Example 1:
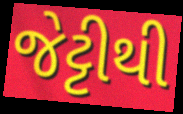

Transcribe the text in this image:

જેટ્ટીથી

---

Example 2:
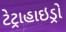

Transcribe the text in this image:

ટેટ્રાહાઇડ્રો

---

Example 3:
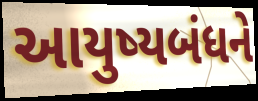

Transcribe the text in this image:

આયુષ્યબંધને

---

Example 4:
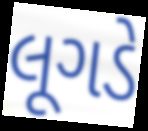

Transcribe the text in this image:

લૂગડે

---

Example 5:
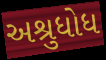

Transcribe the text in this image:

અશ્રુધોધ